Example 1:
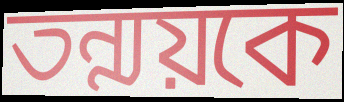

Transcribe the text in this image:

তন্ময়কে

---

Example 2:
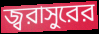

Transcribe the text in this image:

জ্বরাসুরের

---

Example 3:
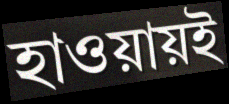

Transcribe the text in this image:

হাওয়ায়ই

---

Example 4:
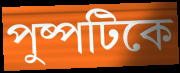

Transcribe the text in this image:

পুষ্পটিকে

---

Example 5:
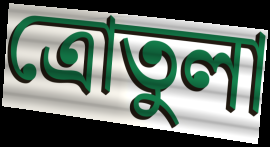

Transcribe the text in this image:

ত্রোতুলা